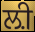
ਲ਼ੀ